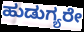
ಹುಡುಗ್ಯರೇ